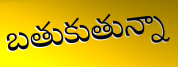
బతుకుతున్నా